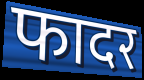
फादर